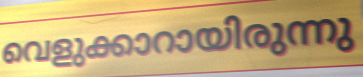
വെളുക്കാറായിരുന്നു